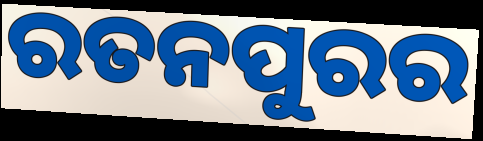
ରତନପୁରର